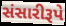
સંસારીરૂપે